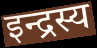
इन्द्रस्य